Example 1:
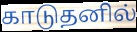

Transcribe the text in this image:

காடுதனில்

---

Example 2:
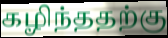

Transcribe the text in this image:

கழிந்ததற்கு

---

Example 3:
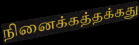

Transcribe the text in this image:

நினைக்கத்தக்கது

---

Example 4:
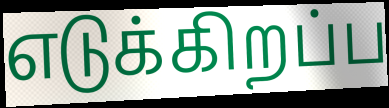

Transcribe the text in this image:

எடுக்கிறப்ப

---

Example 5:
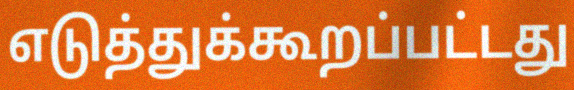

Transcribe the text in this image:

எடுத்துக்கூறப்பட்டது